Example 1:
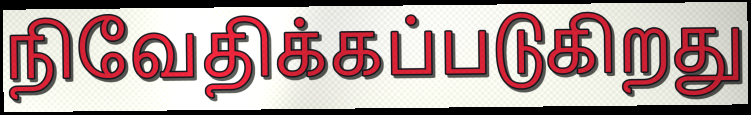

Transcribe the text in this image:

நிவேதிக்கப்படுகிறது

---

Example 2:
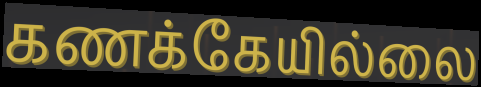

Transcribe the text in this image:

கணக்கேயில்லை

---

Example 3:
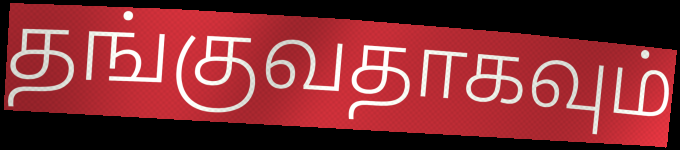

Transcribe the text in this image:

தங்குவதாகவும்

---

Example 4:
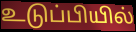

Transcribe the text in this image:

உடுப்பியில்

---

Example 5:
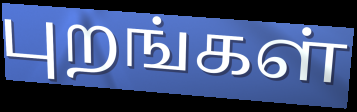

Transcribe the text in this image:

புறங்கள்